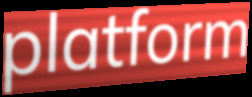
platform